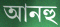
আনহু